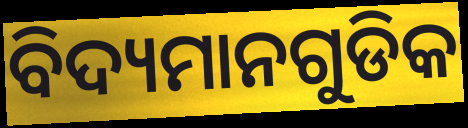
ବିଦ୍ୟମାନଗୁଡିକ